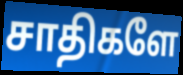
சாதிகளே